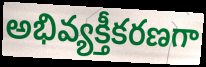
అభివ్యక్తీకరణగా